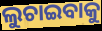
ଲୁଚାଇବାକୁ